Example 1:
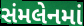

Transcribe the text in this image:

સંમલેનમાં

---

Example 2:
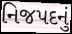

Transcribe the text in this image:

નિજપદનું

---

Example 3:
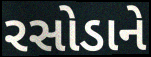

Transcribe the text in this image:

રસોડાને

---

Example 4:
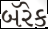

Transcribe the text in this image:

બૅરેક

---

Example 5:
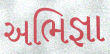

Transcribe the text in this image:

અભિજ્ઞા